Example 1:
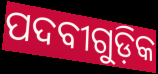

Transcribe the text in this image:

ପଦବୀଗୁଡ଼ିକ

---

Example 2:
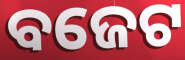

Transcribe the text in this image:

ବଜେଟ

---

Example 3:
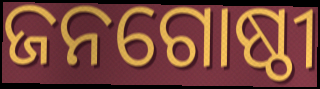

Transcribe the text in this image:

ଜନଗୋଷ୍ଠୀ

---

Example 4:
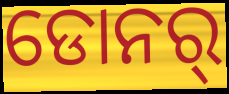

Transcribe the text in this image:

ଡୋନର୍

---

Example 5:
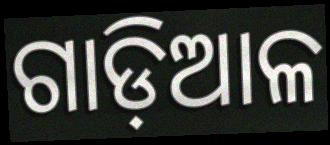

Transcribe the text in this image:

ଗାଡ଼ିଆଳ